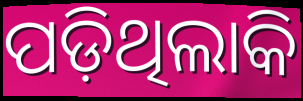
ପଡ଼ିଥିଲାକି